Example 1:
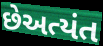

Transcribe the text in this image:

છેઅત્યંત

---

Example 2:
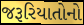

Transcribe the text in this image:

જરૂરિયાતોનો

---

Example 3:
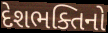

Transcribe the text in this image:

દેશભક્તિનો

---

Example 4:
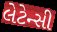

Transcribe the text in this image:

લેટેન્સી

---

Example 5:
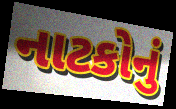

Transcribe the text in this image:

નાટકોનું